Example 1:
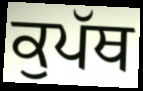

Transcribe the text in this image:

ਕੁਪੱਥ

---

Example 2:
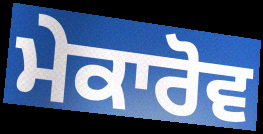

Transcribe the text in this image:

ਮੇਕਾਰੋਵ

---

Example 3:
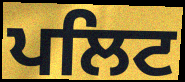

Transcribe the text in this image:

ਪਲਿਟ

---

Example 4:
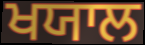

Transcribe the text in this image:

ਖਯਾਲ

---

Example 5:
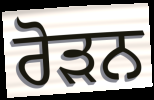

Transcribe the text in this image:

ਰੋੜਨ